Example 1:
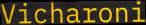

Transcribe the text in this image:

Vicharoni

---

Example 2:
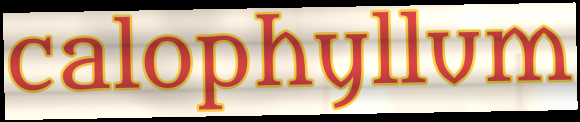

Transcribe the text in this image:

calophyllum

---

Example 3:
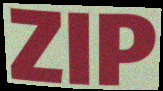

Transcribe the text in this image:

ZIP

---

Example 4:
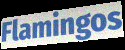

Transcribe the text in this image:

Flamingos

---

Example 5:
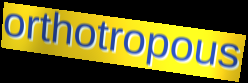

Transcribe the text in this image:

orthotropous